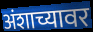
अंशाच्यावर